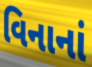
વિનાનાં